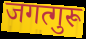
जगत्गुरू